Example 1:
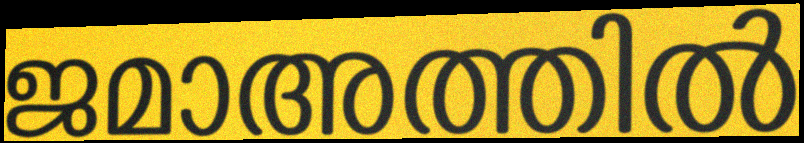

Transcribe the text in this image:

ജമാഅത്തിൽ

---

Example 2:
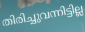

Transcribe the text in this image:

തിരിച്ചുവന്നിട്ടില്ല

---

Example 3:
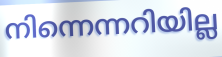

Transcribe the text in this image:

നിന്നെന്നറിയില്ല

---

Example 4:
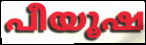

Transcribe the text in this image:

പീയൂഷ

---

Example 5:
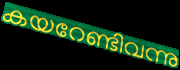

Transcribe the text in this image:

കയറേണ്ടിവന്നു